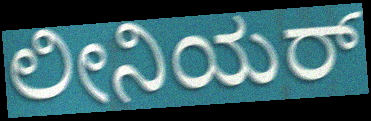
ಲೀನಿಯರ್